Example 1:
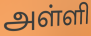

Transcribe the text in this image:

அள்ளி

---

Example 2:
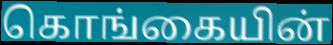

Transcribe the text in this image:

கொங்கையின்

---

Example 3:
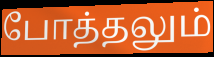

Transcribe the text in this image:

போத்தலும்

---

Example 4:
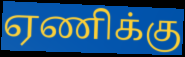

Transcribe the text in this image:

ஏணிக்கு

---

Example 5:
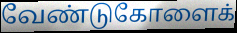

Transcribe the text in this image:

வேண்டுகோளைக்